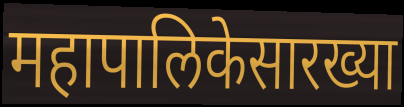
महापालिकेसारख्या